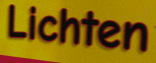
Lichten